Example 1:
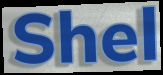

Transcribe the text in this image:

Shel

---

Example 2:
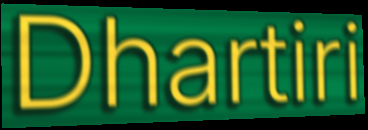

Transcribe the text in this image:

Dhartiri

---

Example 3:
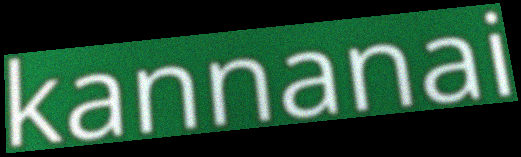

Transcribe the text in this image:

kannanai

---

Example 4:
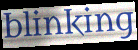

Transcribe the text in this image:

blinking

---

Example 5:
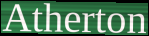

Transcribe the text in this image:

Atherton